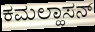
ಕಮಲ್ಹಾಸನ್